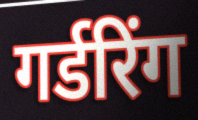
गर्डरिंग